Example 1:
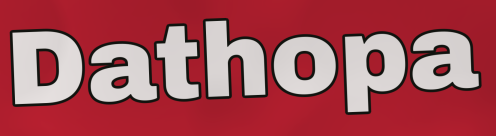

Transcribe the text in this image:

Dathopa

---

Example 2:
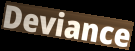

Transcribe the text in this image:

Deviance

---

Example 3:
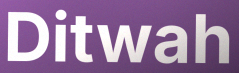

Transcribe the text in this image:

Ditwah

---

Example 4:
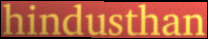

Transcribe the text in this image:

hindusthan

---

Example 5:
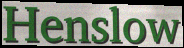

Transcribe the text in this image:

Henslow